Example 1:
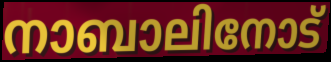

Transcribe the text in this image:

നാബാലിനോട്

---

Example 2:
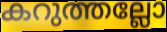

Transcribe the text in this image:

കറുത്തല്ലോ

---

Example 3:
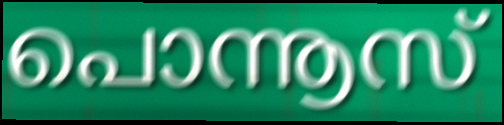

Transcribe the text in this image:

പൊന്നൂസ്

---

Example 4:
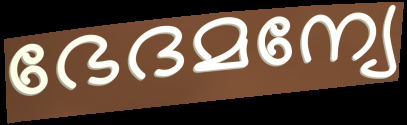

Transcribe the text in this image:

ഭേദമന്യേ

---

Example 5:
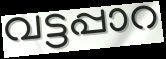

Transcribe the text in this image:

വട്ടപ്പാറ